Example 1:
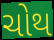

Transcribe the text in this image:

ચોથ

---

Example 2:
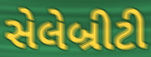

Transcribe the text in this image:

સેલેબ્રીટી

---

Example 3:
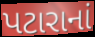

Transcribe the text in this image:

પટારાનાં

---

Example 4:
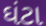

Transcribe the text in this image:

ઘંટા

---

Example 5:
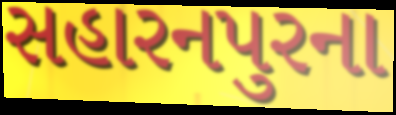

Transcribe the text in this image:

સહારનપુરના